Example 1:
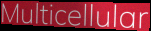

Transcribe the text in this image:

Multicellular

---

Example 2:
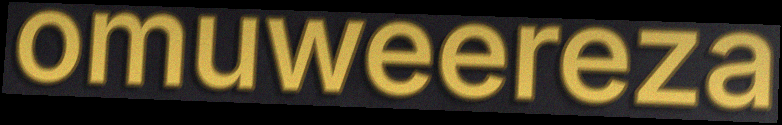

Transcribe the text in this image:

omuweereza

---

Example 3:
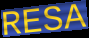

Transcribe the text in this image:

RESA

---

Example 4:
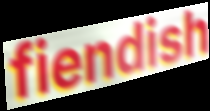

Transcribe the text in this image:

fiendish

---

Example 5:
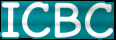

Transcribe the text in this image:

ICBC